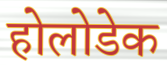
होलोडेक